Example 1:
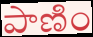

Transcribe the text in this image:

పాణిం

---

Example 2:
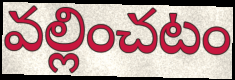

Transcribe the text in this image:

వల్లించటం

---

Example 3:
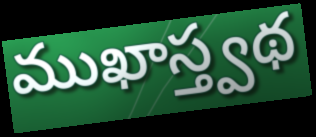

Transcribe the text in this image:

ముఖాస్త్వథ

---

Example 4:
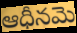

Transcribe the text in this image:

ఆధీనమె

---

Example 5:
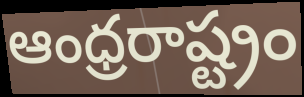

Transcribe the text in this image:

ఆంధ్రరాష్ట్రం